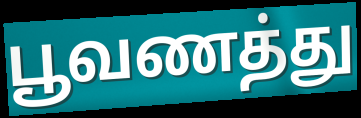
பூவணத்து